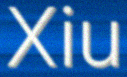
Xiu